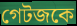
গেটজকে